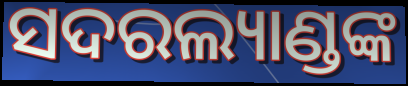
ସଦରଲ୍ୟାଣ୍ଡଙ୍କ